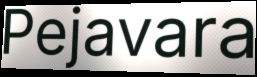
Pejavara